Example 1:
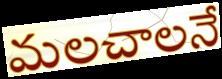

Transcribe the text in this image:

మలచాలనే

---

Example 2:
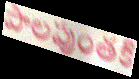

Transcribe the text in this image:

పాలపుంతకి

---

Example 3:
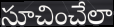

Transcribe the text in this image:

సూచించేలా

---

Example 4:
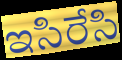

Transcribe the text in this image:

ఇసిరేసి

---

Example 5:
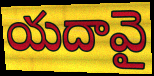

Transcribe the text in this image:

యదావై